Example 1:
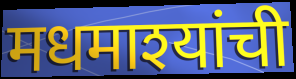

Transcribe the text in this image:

मधमाश्‍यांची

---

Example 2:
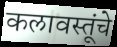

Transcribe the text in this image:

कलावस्तूंचे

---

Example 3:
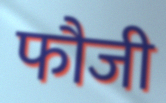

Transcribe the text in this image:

फौजी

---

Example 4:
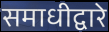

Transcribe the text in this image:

समाधीद्वारे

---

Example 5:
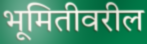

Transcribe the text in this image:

भूमितीवरील